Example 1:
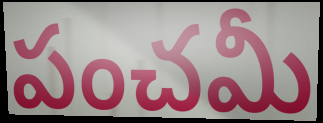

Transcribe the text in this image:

పంచమీ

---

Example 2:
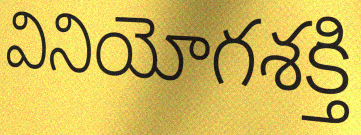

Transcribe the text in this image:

వినియోగశక్తి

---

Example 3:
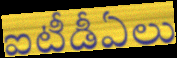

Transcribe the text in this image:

ఐటీడీఏలు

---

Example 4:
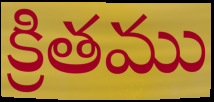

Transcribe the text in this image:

క్రితము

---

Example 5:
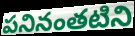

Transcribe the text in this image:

పనినంతటిని